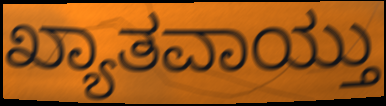
ಖ್ಯಾತವಾಯ್ತು